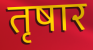
तृषार